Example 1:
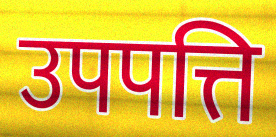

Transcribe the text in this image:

उपपत्ति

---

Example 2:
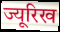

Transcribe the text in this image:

ज्यूरिख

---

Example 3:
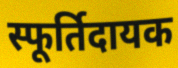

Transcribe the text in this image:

स्फूर्तिदायक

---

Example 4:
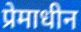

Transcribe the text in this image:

प्रेमाधीन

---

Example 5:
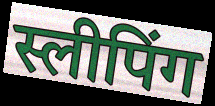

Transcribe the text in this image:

स्लीपिंग